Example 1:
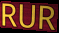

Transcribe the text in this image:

RUR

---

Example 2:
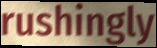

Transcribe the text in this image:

rushingly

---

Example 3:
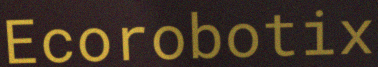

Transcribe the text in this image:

Ecorobotix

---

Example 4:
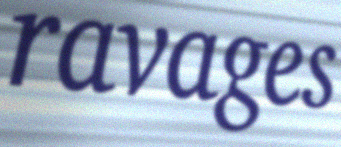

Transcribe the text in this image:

ravages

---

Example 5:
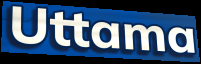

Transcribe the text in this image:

Uttama